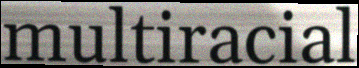
multiracial